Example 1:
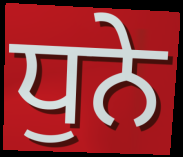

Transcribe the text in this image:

ਧੁਨੇ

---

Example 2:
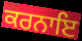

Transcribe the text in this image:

ਕਰਨਾਇ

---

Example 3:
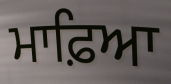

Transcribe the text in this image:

ਮਾਫ਼ਿਆ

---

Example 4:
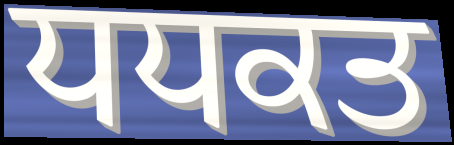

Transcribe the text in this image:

ਧਧਕਤ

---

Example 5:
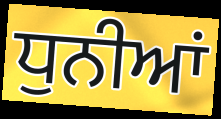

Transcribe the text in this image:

ਧੁਨੀਆਂ